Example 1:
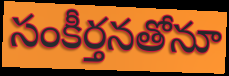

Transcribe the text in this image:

సంకీర్తనతోనూ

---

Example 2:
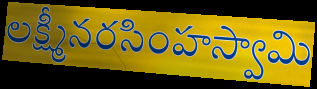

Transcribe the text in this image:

లక్ష్మీనరసింహస్వామి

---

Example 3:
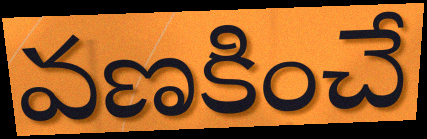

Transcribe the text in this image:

వణకించే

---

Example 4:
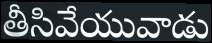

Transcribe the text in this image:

తీసివేయువాడు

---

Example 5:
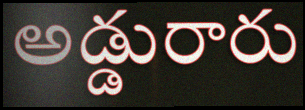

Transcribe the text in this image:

అడ్డురారు